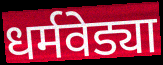
धर्मवेड्या